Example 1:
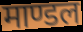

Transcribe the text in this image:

माण्डल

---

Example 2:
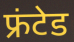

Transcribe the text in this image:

फ्रंटेड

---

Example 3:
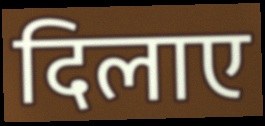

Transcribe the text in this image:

दिलाए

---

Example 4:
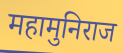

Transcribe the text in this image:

महामुनिराज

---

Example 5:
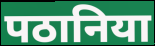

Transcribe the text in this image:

पठानिया